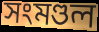
সংমণ্ডল